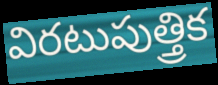
విరటుపుత్త్రిక